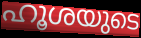
ഹൂശയുടെ